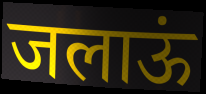
जलाऊं